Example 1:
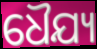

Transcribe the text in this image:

ଧୈଯ୍ଯ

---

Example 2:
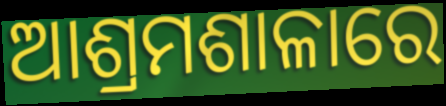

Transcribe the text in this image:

ଆଶ୍ରମଶାଳାରେ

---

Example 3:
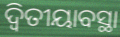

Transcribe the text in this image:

ଦ୍ବିତୀୟାବସ୍ଥା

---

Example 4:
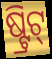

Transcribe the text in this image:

ଷ୍ଟ୍ରିଟ୍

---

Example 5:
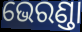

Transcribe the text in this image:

ଭେରଣ୍ଡା